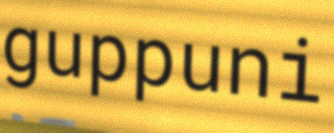
guppuni